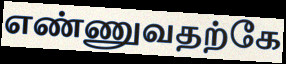
எண்ணுவதற்கே